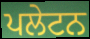
ਪਲੇਟਨ